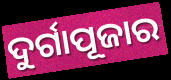
ଦୁର୍ଗାପୂଜାର